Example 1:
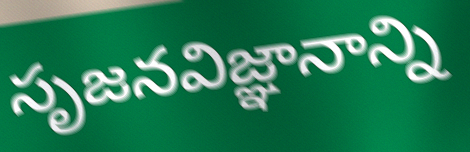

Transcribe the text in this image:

సృజనవిజ్ఞానాన్ని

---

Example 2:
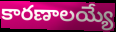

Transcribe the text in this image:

కారణాలయ్యే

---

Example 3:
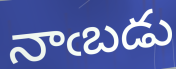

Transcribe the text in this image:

నాఁబడు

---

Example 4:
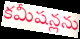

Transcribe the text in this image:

కమీషన్లను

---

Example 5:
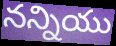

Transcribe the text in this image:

నన్నియు